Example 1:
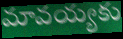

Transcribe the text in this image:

మావయ్యకు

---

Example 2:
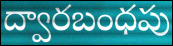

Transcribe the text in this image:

ద్వారబంధపు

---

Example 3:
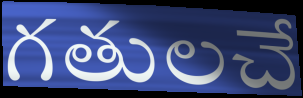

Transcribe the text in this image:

గతులచే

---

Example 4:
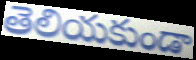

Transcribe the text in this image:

తెలియకుండా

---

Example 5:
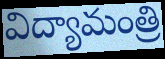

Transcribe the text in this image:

విద్యామంత్రి